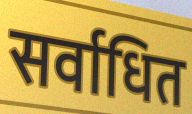
सर्वाधित